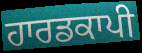
ਹਾਰਡਕਾਪੀ